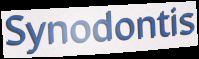
Synodontis